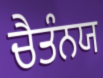
ਚੈਤੰਨਯ